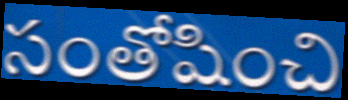
సంతోషించి